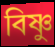
বিষ্ণু